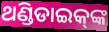
ଥଣ୍ଡିଡାଇକ୍‌ଙ୍କ